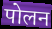
पोलन